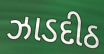
ઝાડદીઠ